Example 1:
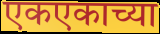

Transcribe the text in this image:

एकएकाच्या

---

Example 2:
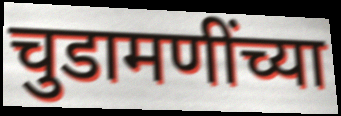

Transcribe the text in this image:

चुडामणींच्या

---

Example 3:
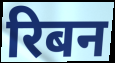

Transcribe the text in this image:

रिबन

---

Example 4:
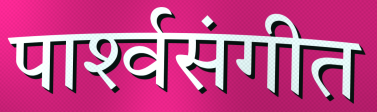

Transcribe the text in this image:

पार्श्‍वसंगीत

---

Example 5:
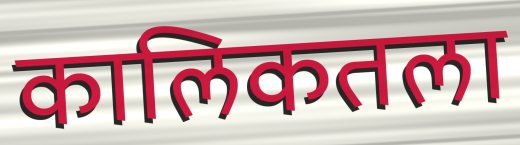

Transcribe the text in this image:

कालिकतला